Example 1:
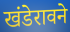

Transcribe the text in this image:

खंडेरावने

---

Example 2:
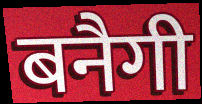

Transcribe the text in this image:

बनैगी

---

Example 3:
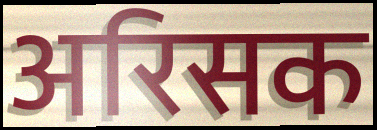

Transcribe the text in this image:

अरिसक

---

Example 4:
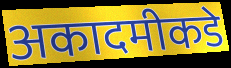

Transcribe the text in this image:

अकादमीकडे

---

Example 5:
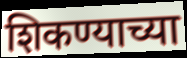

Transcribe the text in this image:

शिकण्याच्या